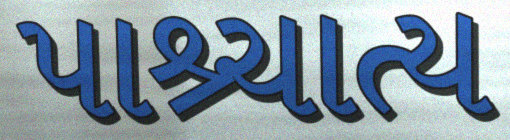
પાશ્ર્ચાત્ય